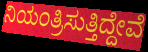
ನಿಯಂತ್ರಿಸುತ್ತಿದ್ದೇವೆ